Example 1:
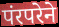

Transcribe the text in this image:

पंरपरेने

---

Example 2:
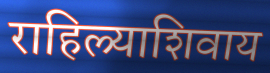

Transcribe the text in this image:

राहिल्याशिवाय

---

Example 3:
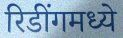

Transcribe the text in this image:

रिडींगमध्ये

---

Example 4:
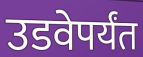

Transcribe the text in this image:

उडवेपर्यंत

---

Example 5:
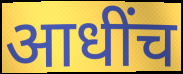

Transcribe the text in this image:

आधींच